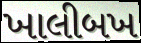
ખાલીબખ